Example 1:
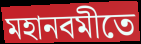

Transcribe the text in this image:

মহানবমীতে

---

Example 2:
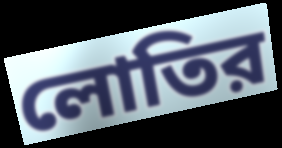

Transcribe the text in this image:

লোতির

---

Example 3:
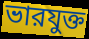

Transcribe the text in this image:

ভারযুক্ত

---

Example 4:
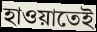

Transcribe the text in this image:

হাওয়াতেই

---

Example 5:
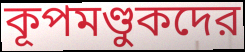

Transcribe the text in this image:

কূপমণ্ডুকদের